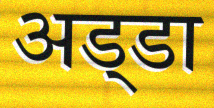
अड्‍डा